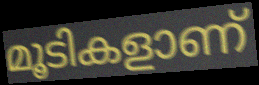
മൂടികളാണ്